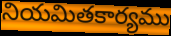
నియమితకార్యము